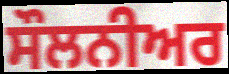
ਸੌਲਨੀਅਰ